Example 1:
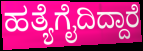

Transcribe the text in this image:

ಹತ್ಯೆಗೈದಿದ್ದಾರೆ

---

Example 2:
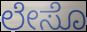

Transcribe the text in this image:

ಲೇಸೊ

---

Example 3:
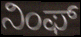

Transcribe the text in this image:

ನಿಂಫ್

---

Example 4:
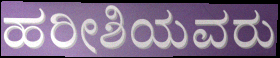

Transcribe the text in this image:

ಹರೀಶಿಯವರು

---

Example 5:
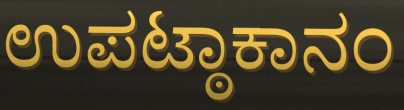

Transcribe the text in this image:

ಉಪಟ್ಠಾಕಾನಂ